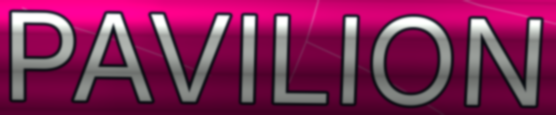
PAVILION